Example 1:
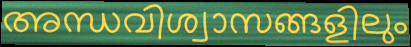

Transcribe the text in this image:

അന്ധവിശ്വാസങ്ങളിലും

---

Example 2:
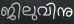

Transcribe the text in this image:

ജിലുവിനു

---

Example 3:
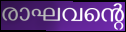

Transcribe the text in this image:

രാഘവന്റെ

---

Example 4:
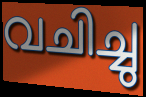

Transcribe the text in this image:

വചിച്ചു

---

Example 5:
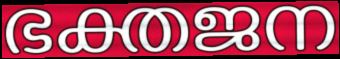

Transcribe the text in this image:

ഭക്തജന